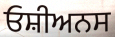
ਓਸ਼ੀਅਨਸ